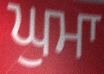
ਘੁਮਾ